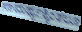
ಸಾಮರ್ಥ್ಯಕ್ಕಿಂತಲೂ